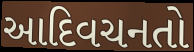
આદિવચનતો